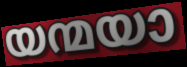
യന്മയാ